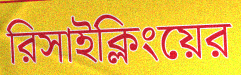
রিসাইক্লিংয়ের